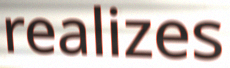
realizes